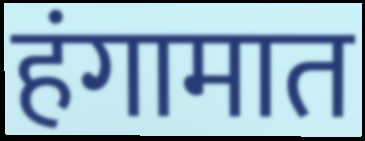
हंगामात